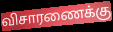
விசாரணைக்கு